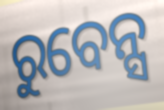
ରୁବେନ୍ସ